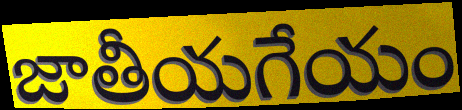
జాతీయగేయం